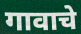
गावाचे